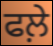
ਫਲ਼ੇ